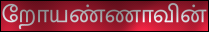
றோயண்ணாவின்